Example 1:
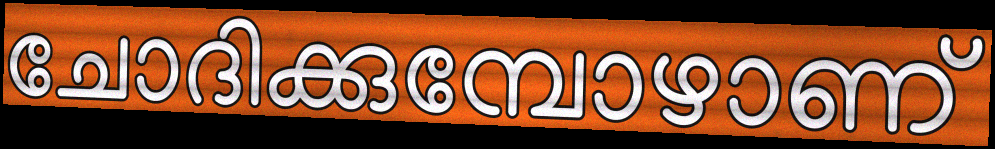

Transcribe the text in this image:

ചോദിക്കുമ്പോഴാണ്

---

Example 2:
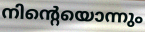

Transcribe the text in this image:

നിന്റെയൊന്നും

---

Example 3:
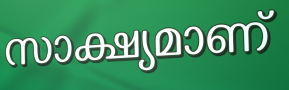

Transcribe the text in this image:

സാക്ഷ്യമാണ്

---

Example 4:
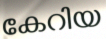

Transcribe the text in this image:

കേറിയ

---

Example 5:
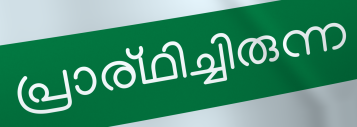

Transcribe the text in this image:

പ്രാര്ഥിച്ചിരുന്ന